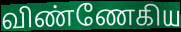
விண்ணேகிய